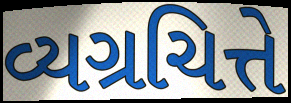
વ્યગ્રચિત્તે